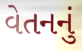
વેતનનું